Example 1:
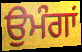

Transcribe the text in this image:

ਉਮੰਗਾਂ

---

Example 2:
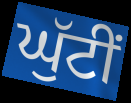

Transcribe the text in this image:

ਘੁੱਟੀਂ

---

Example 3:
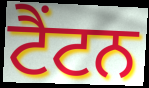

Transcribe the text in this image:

ਟੈਂਟਨ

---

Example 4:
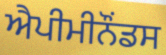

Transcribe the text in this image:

ਐਪੀਮੀਨੌਂਡਸ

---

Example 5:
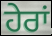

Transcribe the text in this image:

ਹੇਰਾਂ